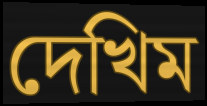
দেখিম